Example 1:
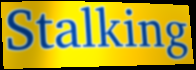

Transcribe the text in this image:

Stalking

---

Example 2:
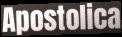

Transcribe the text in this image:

Apostolica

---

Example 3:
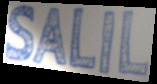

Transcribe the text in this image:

SALIL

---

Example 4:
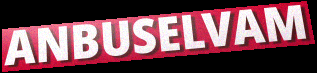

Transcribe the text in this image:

ANBUSELVAM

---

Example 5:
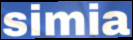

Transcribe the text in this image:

simia